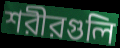
শরীরগুলি